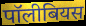
पॉलीबियस